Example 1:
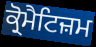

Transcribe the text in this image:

ਕ੍ਰੋਮੈਟਿਜ਼ਮ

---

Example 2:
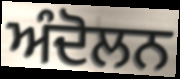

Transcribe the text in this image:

ਅੰਦੋਲਨ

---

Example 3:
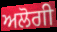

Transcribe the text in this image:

ਅਲੋਗੀ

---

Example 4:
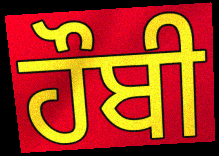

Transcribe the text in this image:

ਹੌਬੀ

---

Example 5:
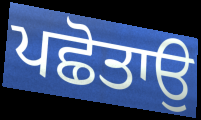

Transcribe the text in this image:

ਪਛੋਤਾਉ